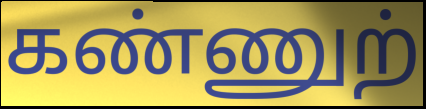
கண்ணுற்